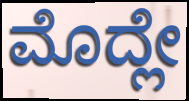
ಮೊದ್ಲೇ